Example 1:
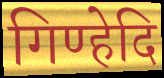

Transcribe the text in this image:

गिण्हेदि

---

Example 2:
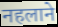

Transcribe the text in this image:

नहलाने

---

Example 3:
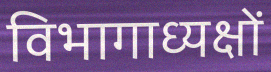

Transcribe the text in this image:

विभागाध्‍यक्षों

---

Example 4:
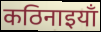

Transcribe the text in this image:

कठिनाइयाँ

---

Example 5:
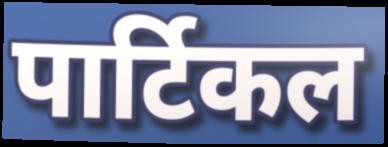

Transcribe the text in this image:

पार्टिकल